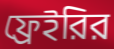
ফ্রেইরির